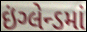
ઇંગ્લેન્ડમાં